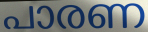
പാരണ